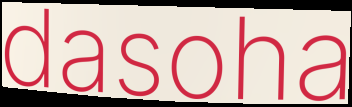
dasoha